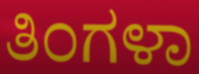
ತಿಂಗಳಾ